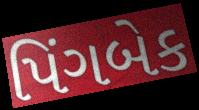
પિંગબેક